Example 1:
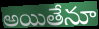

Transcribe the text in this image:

అయితేనూ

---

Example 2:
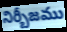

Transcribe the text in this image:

నిర్బీజము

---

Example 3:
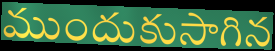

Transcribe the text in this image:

ముందుకుసాగిన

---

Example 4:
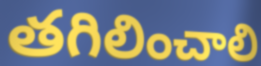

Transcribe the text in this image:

తగిలించాలి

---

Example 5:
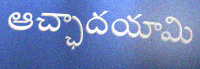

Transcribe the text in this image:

ఆచ్ఛాదయామి